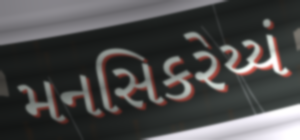
મનસિકરેય્યં